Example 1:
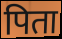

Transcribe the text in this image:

पिता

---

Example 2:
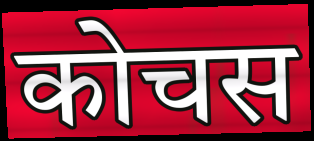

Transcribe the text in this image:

कोचस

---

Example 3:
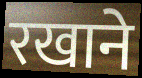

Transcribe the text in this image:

रखाने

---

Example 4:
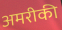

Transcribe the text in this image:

अमरीकी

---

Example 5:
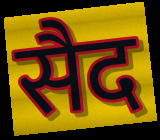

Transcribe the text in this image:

सैद